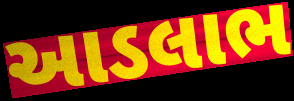
આડલાભ